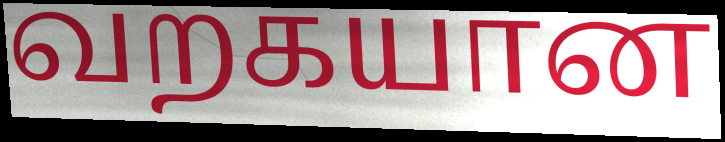
வறகயான